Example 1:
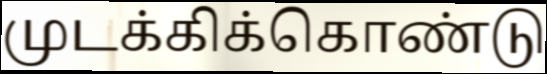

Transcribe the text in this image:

முடக்கிக்கொண்டு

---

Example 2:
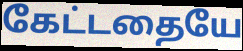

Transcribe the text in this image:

கேட்டதையே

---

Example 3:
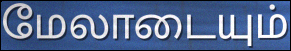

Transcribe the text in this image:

மேலாடையும்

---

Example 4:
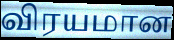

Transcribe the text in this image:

விரயமான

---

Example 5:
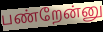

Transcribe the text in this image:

பண்றேன்னு